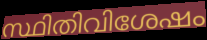
സ്ഥിതിവിശേഷം